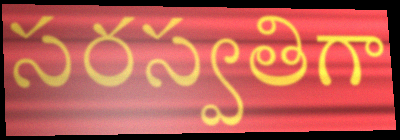
సరస్వతిగా